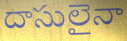
దాసులైనా